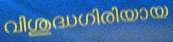
വിശുദ്ധഗിരിയായ